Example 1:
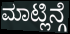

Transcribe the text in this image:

ಮಾಟ್ಲಿನ್ಗೆ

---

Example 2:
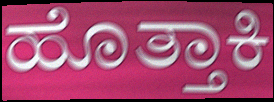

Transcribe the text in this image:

ಹೊತ್ತಾಕಿ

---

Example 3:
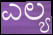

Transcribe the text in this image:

ಎಲ್ಯ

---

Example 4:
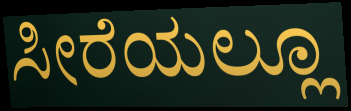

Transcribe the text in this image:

ಸೀರೆಯಲ್ಲೂ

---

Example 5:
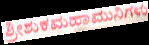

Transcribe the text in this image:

ಶ್ರೀಶುಕಮಹಾಮುನಿಗಳು